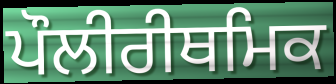
ਪੌਲੀਰੀਥਮਿਕ